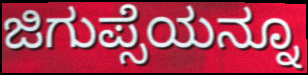
ಜಿಗುಪ್ಸೆಯನ್ನೂ